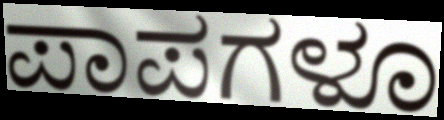
ಪಾಪಗಳೂ